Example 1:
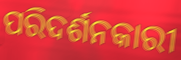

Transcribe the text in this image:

ପରିଦର୍ଶନକାରୀ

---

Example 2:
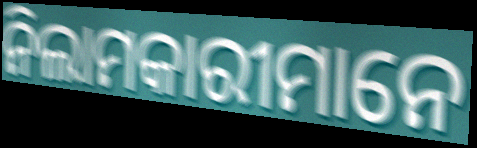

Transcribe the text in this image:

ନିଲାମକାରୀମାନେ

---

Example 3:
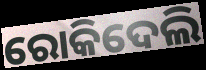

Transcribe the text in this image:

ରୋକିଦେଲି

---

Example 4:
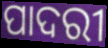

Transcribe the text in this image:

ପାଦରୀ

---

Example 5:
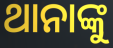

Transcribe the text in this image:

ଥାନାଙ୍କୁ